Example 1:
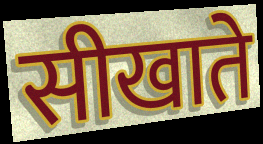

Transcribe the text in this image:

सीखाते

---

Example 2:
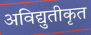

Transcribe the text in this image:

अविद्युतीकृत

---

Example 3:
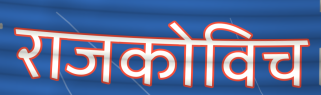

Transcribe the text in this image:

राजकोविच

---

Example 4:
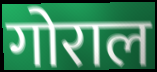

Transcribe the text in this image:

गोराल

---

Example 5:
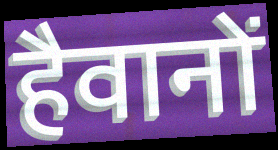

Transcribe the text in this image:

हैवानों